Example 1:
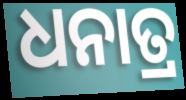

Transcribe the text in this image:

ଧନାତ୍ର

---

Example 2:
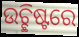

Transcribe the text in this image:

ଉଚ୍ଛିଷ୍ଟରେ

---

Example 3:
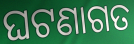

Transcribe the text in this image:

ଘଟଣାଗତ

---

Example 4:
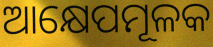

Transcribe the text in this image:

ଆକ୍ଷେପମୂଳକ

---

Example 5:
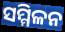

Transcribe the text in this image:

ସମ୍ମିଳନ